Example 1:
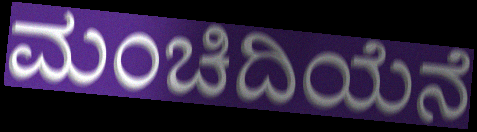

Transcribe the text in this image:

ಮಂಚಿದಿಯೆನೆ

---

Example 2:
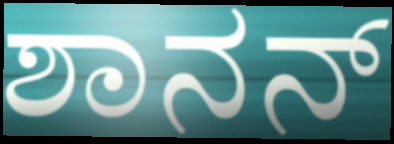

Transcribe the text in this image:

ಶಾನನ್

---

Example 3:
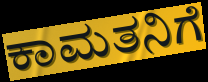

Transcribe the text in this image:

ಕಾಮತನಿಗೆ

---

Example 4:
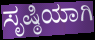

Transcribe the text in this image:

ಸೃಷ್ಠಿಯಾಗಿ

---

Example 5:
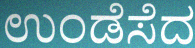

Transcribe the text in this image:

ಉಂಡೆಸೆದ